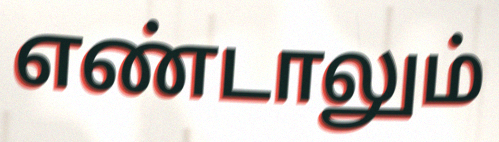
எண்டாலும்